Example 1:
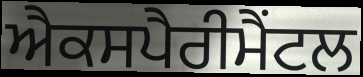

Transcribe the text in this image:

ਐਕਸਪੈਰੀਮੈਂਟਲ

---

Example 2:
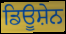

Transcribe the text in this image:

ਡਿਊਸ਼ੇਨ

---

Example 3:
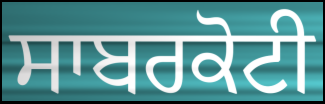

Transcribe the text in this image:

ਸਾਬਰਕੋਟੀ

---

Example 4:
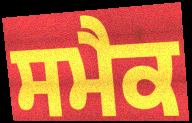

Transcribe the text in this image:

ਸਮੈਕ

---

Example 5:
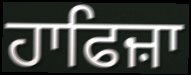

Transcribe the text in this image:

ਹਾਫਿਜ਼ਾ